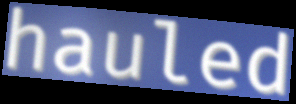
hauled